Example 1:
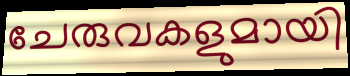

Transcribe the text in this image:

ചേരുവകളുമായി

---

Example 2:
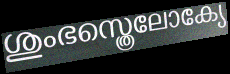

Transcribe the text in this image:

ശുംഭസ്ത്രെലോക്യേ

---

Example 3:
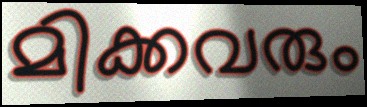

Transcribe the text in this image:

മിക്കവരും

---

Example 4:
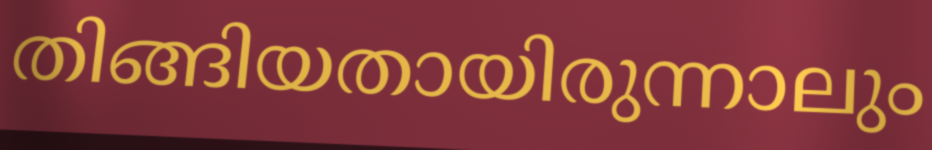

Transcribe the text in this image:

തിങ്ങിയതായിരുന്നാലും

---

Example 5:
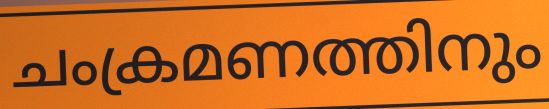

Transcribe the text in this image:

ചംക്രമണത്തിനും